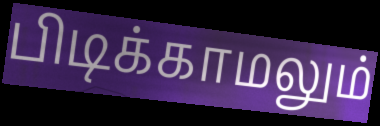
பிடிக்காமலும்